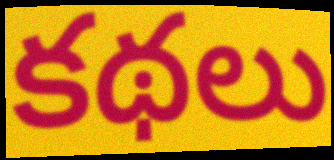
కథలు